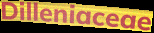
Dilleniaceae